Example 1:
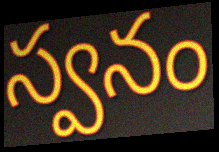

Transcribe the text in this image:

స్వనం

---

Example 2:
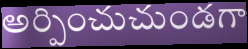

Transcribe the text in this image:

అర్పించుచుండగా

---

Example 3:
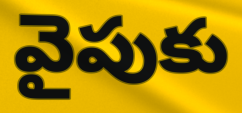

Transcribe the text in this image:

వైపుకు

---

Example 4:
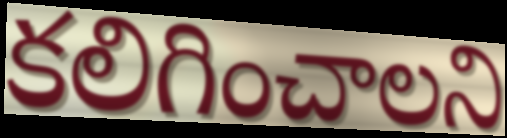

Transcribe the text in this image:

కలిగించాలని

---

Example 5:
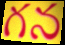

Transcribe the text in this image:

గన